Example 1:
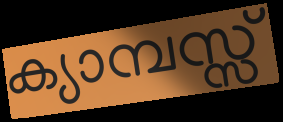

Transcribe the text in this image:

ക്യാമ്പസ്സ്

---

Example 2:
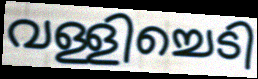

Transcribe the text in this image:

വള്ളിച്ചെടി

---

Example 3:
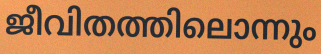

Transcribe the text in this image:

ജീവിതത്തിലൊന്നും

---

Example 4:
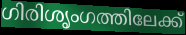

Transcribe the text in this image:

ഗിരിശൃംഗത്തിലേക്ക്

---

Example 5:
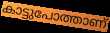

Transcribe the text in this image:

കാട്ടുപോത്താണ്